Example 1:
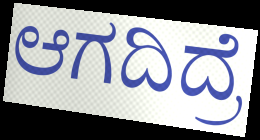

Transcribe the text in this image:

ಆಗದಿದ್ರೆ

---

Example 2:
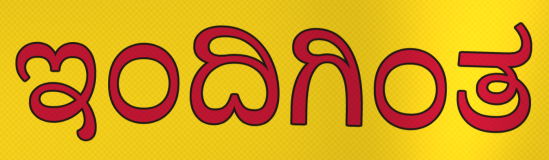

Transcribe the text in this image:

ಇಂದಿಗಿಂತ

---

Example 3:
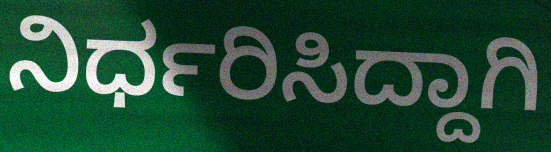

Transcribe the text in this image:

ನಿರ್ಧರಿಸಿದ್ದಾಗಿ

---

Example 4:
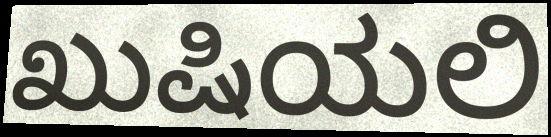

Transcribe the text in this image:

ಖುಷಿಯಲಿ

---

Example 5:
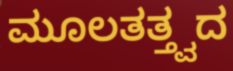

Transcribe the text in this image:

ಮೂಲತತ್ತ್ವದ